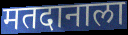
मतदानाला